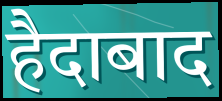
हैदाबाद